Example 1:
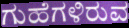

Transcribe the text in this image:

ಗುಹೆಗಳಿರುವ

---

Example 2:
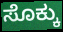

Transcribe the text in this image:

ಸೊಕ್ಕು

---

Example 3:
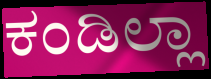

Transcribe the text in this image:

ಕಂಡಿಲ್ಲಾ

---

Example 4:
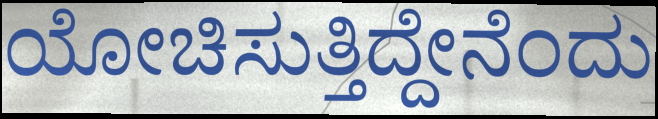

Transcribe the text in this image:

ಯೋಚಿಸುತ್ತಿದ್ದೇನೆಂದು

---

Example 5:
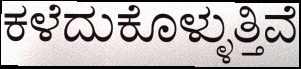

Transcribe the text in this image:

ಕಳೆದುಕೊಳ್ಳುತ್ತಿವೆ